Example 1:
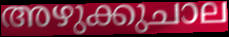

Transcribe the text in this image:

അഴുക്കുചാല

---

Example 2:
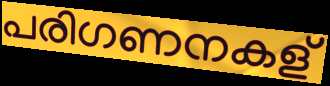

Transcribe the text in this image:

പരിഗണനകള്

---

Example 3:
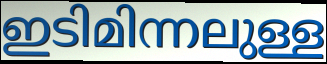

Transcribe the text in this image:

ഇടിമിന്നലുള്ള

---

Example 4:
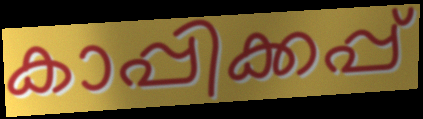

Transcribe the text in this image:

കാപ്പിക്കപ്പ്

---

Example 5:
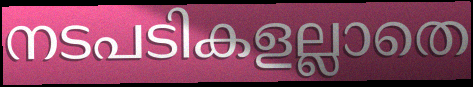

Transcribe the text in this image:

നടപടികളല്ലാതെ